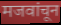
मजवांचून